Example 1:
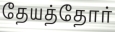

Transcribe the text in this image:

தேயத்தோர்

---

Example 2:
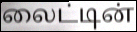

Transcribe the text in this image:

லைட்டின்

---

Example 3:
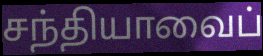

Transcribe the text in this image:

சந்தியாவைப்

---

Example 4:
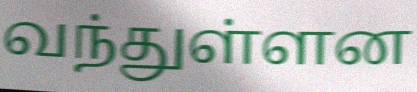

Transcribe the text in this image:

வந்துள்ளன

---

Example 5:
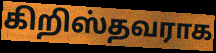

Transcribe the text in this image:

கிறிஸ்தவராக